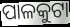
ପାଳକୁଟା